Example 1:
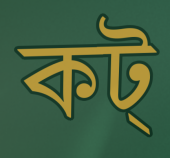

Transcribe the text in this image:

কট্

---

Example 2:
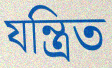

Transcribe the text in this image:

যন্ত্রিত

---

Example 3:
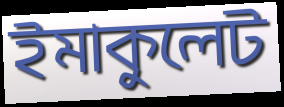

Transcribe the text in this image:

ইমাকুলেট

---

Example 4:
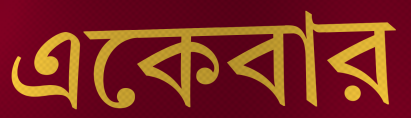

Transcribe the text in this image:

একেবার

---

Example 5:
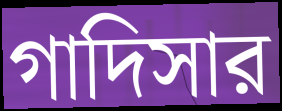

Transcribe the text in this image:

গাদিসার